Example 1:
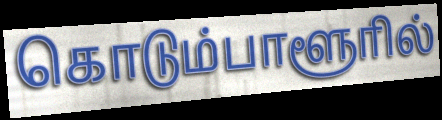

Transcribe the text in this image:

கொடும்பாளூரில்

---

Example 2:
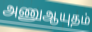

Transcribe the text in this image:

அணுஆயுதம்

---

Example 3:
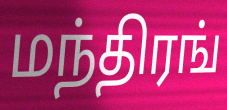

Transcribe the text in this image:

மந்திரங்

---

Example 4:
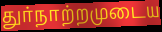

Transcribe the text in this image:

துர்நாற்றமுடைய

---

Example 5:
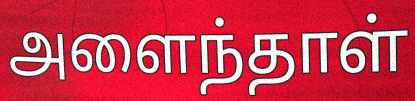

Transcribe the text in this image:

அளைந்தாள்